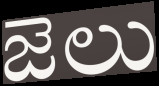
జెలు